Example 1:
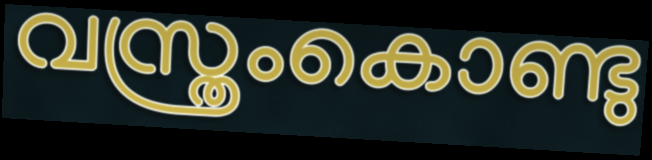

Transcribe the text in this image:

വസ്ത്രംകൊണ്ടു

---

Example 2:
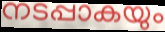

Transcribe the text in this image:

നടപ്പാകയും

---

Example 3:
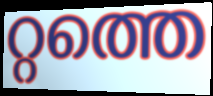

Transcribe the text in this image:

റ്റത്തെ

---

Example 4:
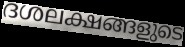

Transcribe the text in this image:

ദശലക്ഷങ്ങളുടെ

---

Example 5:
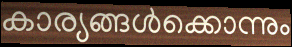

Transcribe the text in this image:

കാര്യങ്ങൾക്കൊന്നും